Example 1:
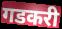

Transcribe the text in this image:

गडकरी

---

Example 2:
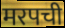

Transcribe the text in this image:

मरपची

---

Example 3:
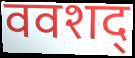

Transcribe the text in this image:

ववशद्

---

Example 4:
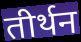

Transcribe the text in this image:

तीर्थन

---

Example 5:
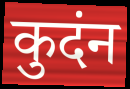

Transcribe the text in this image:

कुदंन